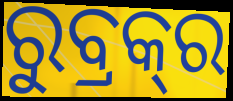
ରୁବ୍ରକ୍‍ର